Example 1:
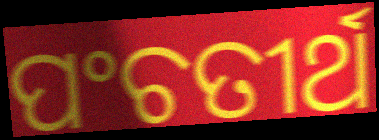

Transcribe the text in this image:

ପଂଚତୀର୍ଥ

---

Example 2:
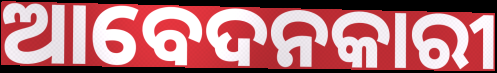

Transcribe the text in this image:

ଆବେଦନକାରୀ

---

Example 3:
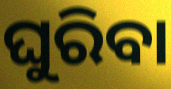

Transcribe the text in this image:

ଘୁରିବା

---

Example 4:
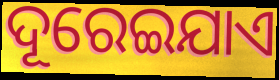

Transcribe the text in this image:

ଦୂରେଇଯାଏ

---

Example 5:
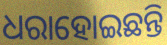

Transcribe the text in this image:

ଧରାହୋଇଛନ୍ତି